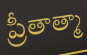
ప్రీతాత్మా